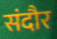
संदौर